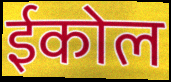
ईकोल